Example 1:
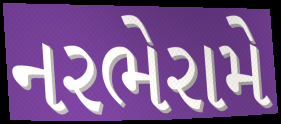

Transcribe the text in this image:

નરભેરામે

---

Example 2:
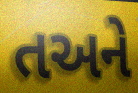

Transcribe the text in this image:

તઅને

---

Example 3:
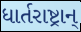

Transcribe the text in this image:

ધાર્તરાષ્ટ્રાન્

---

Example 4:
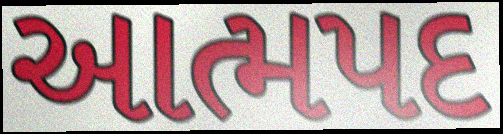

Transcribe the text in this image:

આત્મપદ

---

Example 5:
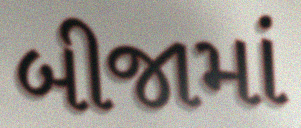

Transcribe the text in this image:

બીજામાં